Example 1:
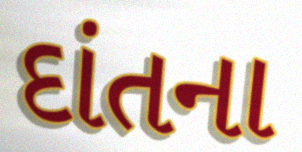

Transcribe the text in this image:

દાંતના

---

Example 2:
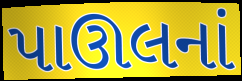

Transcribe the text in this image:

પાઊલનાં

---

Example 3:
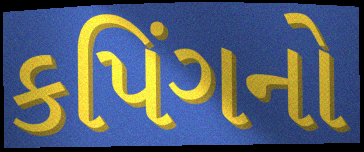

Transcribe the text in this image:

કપિંગનો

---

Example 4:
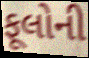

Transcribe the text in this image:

ફૂલોની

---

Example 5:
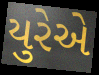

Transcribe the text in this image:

યુરેએ